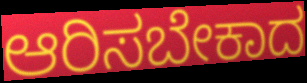
ಆರಿಸಬೇಕಾದ